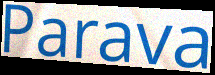
Parava